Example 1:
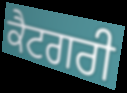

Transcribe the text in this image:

ਕੈਟਗਰੀ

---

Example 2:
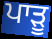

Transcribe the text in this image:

ਪਾੜੂ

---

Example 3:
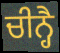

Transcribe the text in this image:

ਚੀਨ੍ਹ੍ਹੈ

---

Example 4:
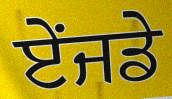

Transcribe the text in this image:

ਏਂਜਡੇ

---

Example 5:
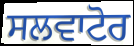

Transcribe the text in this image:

ਸਲਵਾਟੋਰ